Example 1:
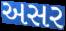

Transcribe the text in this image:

અસર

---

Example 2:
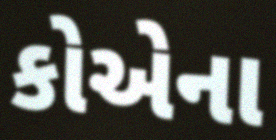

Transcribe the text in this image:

કોએના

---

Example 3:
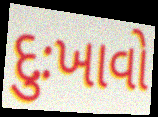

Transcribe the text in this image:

દુઃખાવો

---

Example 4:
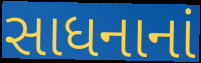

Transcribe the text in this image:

સાધનાનાં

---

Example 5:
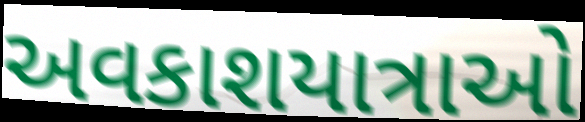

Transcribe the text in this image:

અવકાશયાત્રાઓ